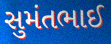
સુમંતભાઈ